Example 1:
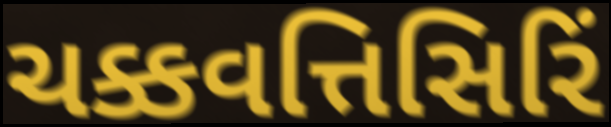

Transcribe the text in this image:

ચક્કવત્તિસિરિં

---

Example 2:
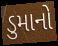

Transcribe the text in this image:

ડુમાનો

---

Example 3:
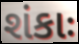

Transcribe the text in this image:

શંકાઃ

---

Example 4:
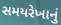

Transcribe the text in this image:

સમયરેખાનું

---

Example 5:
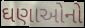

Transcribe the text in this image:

ઘણાઓનો